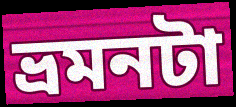
ভ্রমনটা